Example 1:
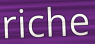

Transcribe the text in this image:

riche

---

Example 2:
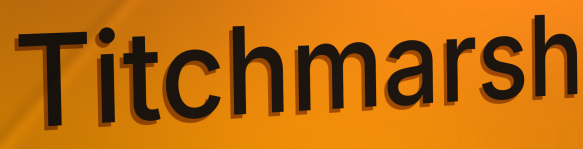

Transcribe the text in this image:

Titchmarsh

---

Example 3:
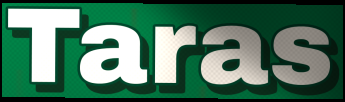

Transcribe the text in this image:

Taras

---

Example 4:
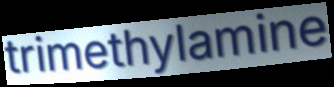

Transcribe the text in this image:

trimethylamine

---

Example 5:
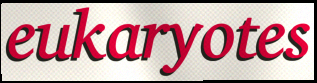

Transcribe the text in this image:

eukaryotes